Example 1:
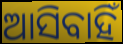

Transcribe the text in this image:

ଆସିବାହିଁ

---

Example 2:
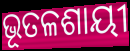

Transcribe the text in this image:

ଭୂତଳଶାୟୀ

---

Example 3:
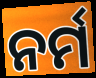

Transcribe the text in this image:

ନର୍ମ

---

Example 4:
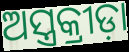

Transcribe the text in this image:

ଅସ୍ତ୍ରକ୍ରୀଡ଼ା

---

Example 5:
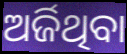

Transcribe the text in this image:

ଅର୍ଜିଥିବା